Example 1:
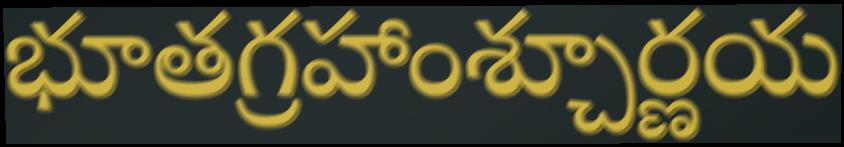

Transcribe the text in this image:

భూతగ్రహాంశ్చూర్ణయ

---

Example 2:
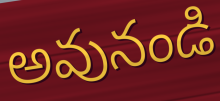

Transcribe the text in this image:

అవునండి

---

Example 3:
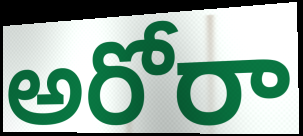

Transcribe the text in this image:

అరోరా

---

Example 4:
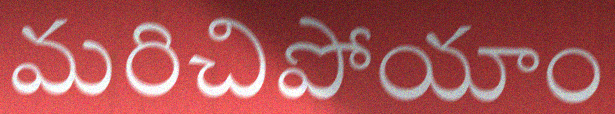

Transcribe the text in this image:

మరిచిపోయాం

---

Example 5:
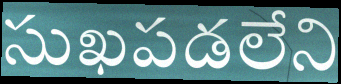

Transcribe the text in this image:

సుఖపడలేని